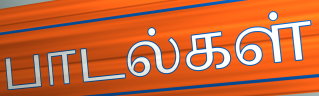
பாடல்கள்